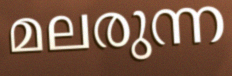
മലരുന്ന